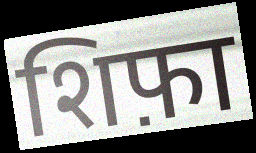
शिफ़ा